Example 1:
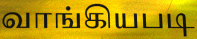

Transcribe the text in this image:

வாங்கியபடி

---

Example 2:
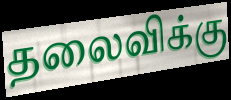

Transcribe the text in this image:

தலைவிக்கு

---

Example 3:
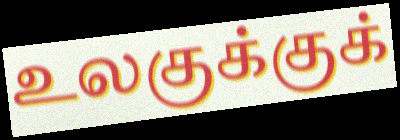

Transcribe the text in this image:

உலகுக்குக்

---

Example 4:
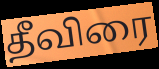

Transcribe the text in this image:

தீவிரை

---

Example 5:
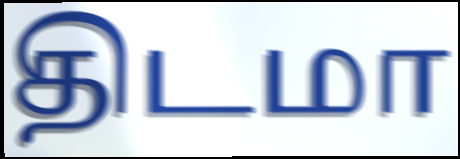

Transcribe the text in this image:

திடமா